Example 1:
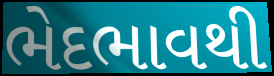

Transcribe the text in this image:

ભેદભાવથી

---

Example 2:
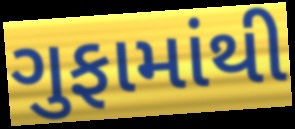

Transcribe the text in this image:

ગુફામાંથી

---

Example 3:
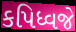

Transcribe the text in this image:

કપિધ્વજે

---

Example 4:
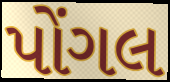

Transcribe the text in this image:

પોંગલ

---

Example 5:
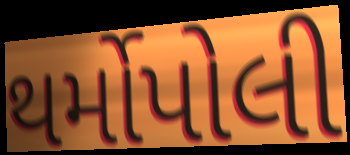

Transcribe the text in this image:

થર્મોપોલી